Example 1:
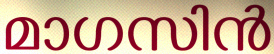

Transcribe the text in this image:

മാഗസിൻ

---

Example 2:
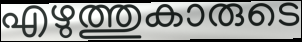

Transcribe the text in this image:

എഴുത്തുകാരുടെ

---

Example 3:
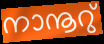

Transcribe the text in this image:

നാനൂറു്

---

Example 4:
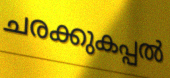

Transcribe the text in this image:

ചരക്കുകപ്പൽ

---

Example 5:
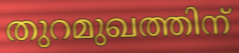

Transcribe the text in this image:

തുറമുഖത്തിന്